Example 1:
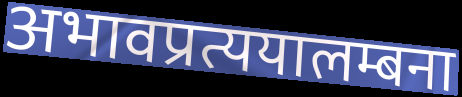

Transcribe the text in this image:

अभावप्रत्ययालम्बना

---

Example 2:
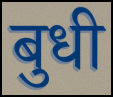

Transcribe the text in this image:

बुधी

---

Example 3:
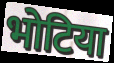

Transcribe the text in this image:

भोटिया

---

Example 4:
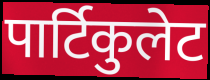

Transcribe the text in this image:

पार्टिकुलेट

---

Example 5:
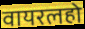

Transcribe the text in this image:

वायरलहो